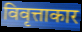
विवृत्ताकार